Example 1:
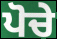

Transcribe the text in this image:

ਪੋਚੇ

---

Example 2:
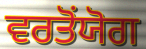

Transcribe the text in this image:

ਵਰਤੋਂਯੋਗ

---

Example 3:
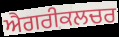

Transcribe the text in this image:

ਐਗਰੀਕਲਚਰ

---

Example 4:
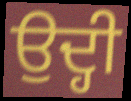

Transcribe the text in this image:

ਉਦ੍ਹੀ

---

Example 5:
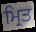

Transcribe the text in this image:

ਮ੍ਰਿਤ